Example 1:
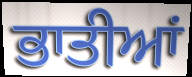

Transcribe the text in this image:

ਭਾਤੀਆਂ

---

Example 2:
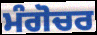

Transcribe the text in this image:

ਮੰਗੋਚਰ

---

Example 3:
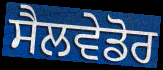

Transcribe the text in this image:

ਸੈਲਵੇਡੋਰ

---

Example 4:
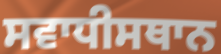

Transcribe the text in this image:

ਸਵਾਧੀਸਥਾਨ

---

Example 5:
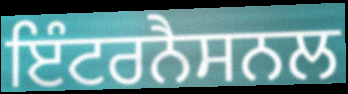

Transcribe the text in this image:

ਇੰਟਰਨੈਸਨਲ